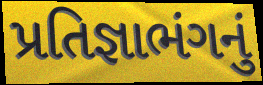
પ્રતિજ્ઞાભંગનું